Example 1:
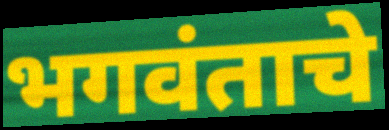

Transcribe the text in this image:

भगवंताचे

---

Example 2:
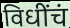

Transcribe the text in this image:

विधींचं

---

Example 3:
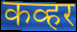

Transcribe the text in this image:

कव्हर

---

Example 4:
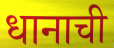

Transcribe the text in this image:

धानाची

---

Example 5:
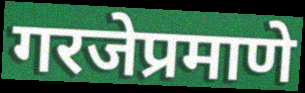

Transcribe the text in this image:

गरजेप्रमाणे